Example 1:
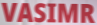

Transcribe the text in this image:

VASIMR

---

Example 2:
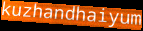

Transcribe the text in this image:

kuzhandhaiyum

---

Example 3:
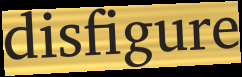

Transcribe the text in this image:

disfigure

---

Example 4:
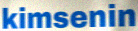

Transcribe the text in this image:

kimsenin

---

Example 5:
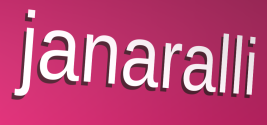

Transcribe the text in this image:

janaralli